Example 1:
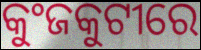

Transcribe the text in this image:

କୁଂଜକୁଟୀରେ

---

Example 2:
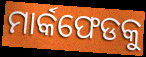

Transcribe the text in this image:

ମାର୍କଫେଡକୁ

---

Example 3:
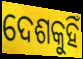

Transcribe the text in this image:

ଦେଶକୁହିଁ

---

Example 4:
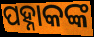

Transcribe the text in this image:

ପହ୍ନାକଙ୍କ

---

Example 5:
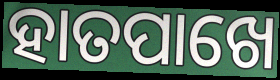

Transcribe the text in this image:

ହାତପାଖେ